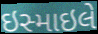
ઇસ્માઇલે